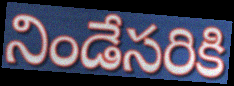
నిండేసరికి